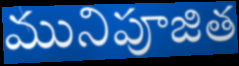
మునిపూజిత